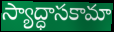
స్యాద్ధాసకామా